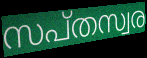
സപ്തസ്വര